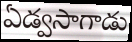
ఏడ్వసాగాడు